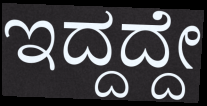
ಇದ್ದದ್ದೇ